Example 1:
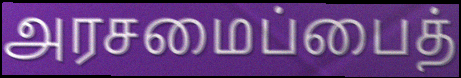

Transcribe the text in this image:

அரசமைப்பைத்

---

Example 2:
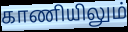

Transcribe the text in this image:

காணியிலும்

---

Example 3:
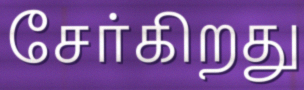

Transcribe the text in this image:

சேர்கிறது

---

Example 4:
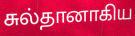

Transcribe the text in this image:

சுல்தானாகிய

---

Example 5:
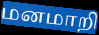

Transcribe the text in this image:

மனமாறி